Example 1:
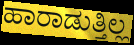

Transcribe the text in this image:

ಹಾರಾಡುತ್ತಿಲ್ಲ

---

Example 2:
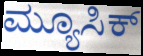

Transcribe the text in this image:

ಮ್ಯೂಸಿಕ್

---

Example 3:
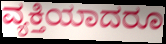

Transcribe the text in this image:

ವ್ಯಕ್ತಿಯಾದರೂ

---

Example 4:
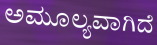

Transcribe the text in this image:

ಅಮೂಲ್ಯವಾಗಿದೆ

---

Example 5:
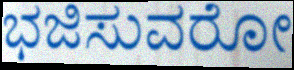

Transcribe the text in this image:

ಭಜಿಸುವರೋ